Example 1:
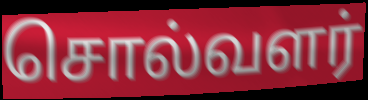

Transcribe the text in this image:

சொல்வளர்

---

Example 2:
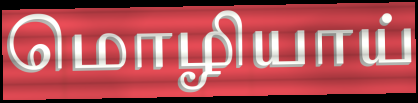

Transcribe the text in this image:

மொழியாய்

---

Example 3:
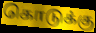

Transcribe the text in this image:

கொடுக்கு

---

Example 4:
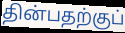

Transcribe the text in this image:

தின்பதற்குப்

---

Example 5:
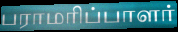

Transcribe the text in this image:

பராமரிப்பாளர்